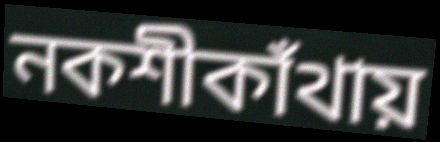
নকশীকাঁথায়